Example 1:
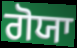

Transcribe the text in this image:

ਗੋਯਾ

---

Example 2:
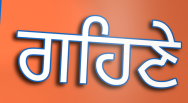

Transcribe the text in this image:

ਗਹਿਣੇ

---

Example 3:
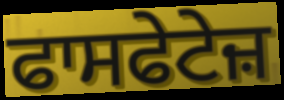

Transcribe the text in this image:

ਫਾਸਫੇਟੇਜ਼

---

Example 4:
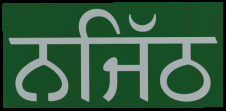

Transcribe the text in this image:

ਨਜਿੱਠ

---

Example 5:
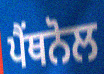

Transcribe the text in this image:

ਪੈਂਥਨੋਲ